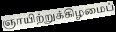
ஞாயிற்றுக்கிழமைப்